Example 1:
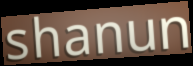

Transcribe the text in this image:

shanun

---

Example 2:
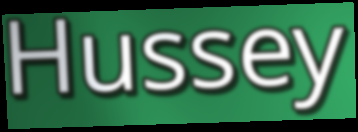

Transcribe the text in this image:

Hussey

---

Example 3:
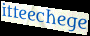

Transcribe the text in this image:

itteechege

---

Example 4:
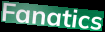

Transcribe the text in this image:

Fanatics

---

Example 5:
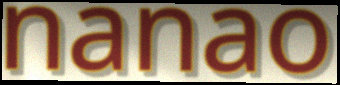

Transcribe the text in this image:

nanao